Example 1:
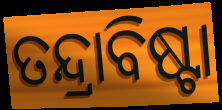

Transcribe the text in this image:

ତନ୍ଦ୍ରାବିଷ୍ଟା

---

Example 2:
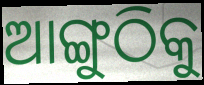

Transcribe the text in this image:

ଆଙ୍ଗୁଠିକୁ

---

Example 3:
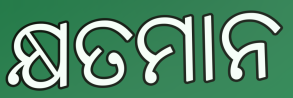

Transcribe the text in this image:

କ୍ଷତମାନ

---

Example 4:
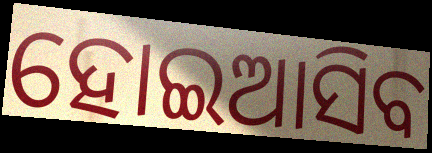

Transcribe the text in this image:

ହୋଇଆସିବ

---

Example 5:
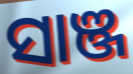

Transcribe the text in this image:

ସାଞ୍ଜ